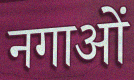
नगाओं